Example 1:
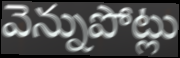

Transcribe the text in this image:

వెన్నుపోట్లు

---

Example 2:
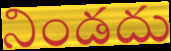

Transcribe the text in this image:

నిండదు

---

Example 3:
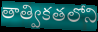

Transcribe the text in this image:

తాత్వికతలోని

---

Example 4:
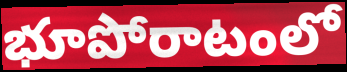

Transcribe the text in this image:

భూపోరాటంలో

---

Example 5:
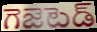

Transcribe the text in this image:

గెజెటెడ్